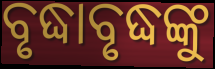
ବୃଦ୍ଧାବୃଦ୍ଧଙ୍କୁ